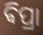
ଵିପ୍ରା